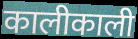
कालीकाली